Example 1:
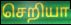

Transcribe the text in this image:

செறியா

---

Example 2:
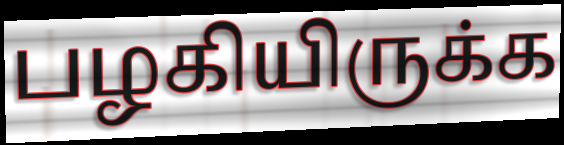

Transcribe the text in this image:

பழகியிருக்க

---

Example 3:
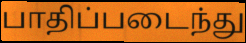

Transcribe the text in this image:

பாதிப்படைந்து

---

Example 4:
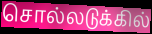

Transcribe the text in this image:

சொல்லடுக்கில்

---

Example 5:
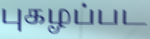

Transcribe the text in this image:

புகழப்பட